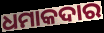
ଧମାକଦାର